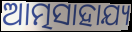
ଆତ୍ମସାହାଯ୍ୟ